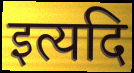
इत्यदि